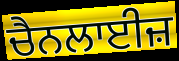
ਚੈਨਲਾਈਜ਼